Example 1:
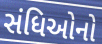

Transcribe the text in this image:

સંધિઓનો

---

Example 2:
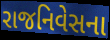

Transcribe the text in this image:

રાજનિવેસના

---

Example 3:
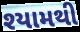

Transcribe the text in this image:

શ્યામથી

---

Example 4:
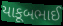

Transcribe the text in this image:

યાકૂબભાઈ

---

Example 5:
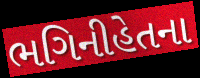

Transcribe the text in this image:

ભગિનીહેતના